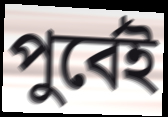
পুর্বেই